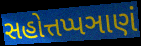
સહોત્તપ્પઞાણં